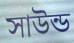
সাউন্ড